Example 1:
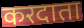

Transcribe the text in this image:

करदाता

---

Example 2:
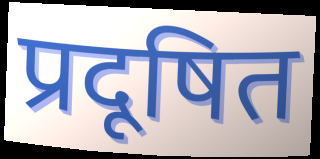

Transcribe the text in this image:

प्रदूषित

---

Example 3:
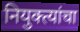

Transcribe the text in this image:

नियुक्त्यांचा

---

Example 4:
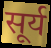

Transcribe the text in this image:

सूर्य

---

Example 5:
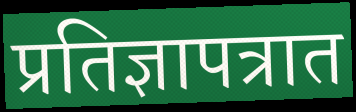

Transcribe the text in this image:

प्रतिज्ञापत्रात